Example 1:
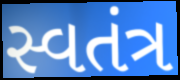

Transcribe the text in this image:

સ્વતંત્ર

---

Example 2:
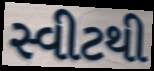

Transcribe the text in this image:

સ્વીટથી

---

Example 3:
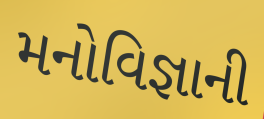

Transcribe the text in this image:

મનોવિજ્ઞાની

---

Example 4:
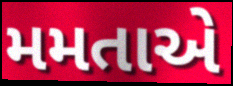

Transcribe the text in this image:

મમતાએ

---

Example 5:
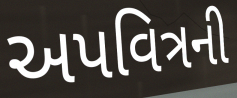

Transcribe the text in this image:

અપવિત્રની